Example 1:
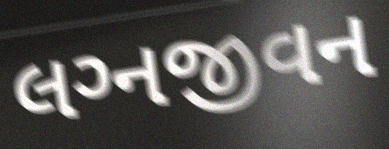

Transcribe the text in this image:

લગ્‍નજીવન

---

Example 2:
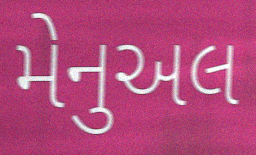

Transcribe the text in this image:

મેનુઅલ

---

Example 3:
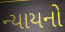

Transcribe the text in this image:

ન્યાયનો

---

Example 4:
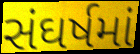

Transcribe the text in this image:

સંઘર્ષમાં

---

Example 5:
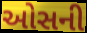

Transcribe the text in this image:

ઓસની